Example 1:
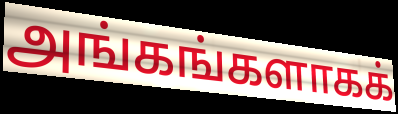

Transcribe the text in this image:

அங்கங்களாகக்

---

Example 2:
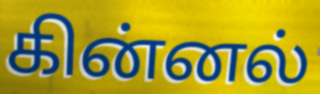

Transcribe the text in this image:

கின்னல்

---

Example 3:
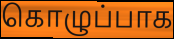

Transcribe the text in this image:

கொழுப்பாக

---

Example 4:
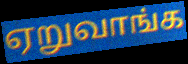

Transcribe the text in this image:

ஏறுவாங்க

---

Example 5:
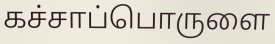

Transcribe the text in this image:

கச்சாப்பொருளை